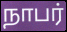
நாபர்